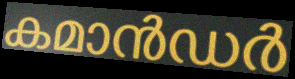
കമാൻഡർ